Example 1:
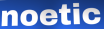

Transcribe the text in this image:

noetic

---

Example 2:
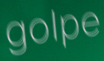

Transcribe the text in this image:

golpe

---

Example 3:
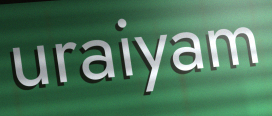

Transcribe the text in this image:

uraiyam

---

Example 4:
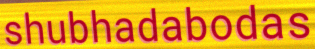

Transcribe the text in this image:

shubhadabodas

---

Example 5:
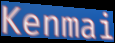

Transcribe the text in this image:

Kenmai